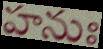
హనుః